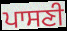
ਪਾਸਣੀ